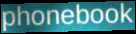
phonebook